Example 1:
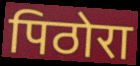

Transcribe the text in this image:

पिठोरा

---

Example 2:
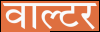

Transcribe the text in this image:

वाल्टर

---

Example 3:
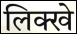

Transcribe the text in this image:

लिक्खे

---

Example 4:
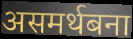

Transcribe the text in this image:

असमर्थबना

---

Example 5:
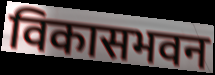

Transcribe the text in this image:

विकासभवन